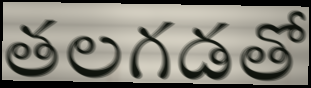
తలగడతో